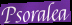
Psoralea